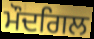
ਮੌਦਗਿਲ